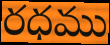
రధము